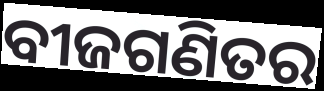
ବୀଜଗଣିତର